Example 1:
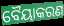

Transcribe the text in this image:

ବୈୟାକରଣ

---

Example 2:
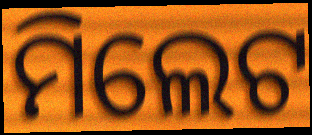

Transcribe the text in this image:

ମିଲେଟ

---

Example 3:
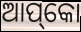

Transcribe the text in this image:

ଆପ୍‌କୋ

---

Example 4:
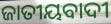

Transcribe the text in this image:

ଜାତୀୟବାଦୀ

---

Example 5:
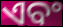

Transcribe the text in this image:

ଏବଂ